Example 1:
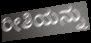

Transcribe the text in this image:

ರೀತಿಯನ್ನು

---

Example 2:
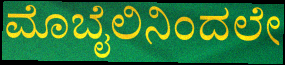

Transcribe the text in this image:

ಮೊಬೈಲಿನಿಂದಲೇ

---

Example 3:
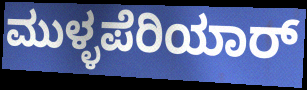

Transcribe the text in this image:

ಮುಳ್ಳಪೆರಿಯಾರ್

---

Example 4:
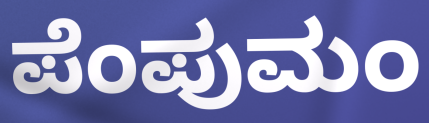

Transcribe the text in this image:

ಪೆಂಪುಮಂ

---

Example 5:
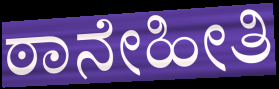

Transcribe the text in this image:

ಠಾನೇಹೀತಿ